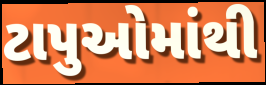
ટાપુઓમાંથી